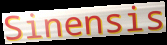
Sinensis